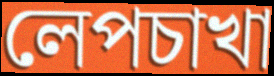
লেপচাখা